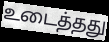
உடைத்தது